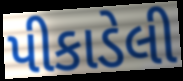
પીકાડેલી